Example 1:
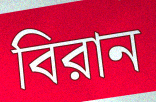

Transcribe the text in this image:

বিরান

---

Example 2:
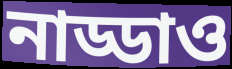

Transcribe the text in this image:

নাড্ডাও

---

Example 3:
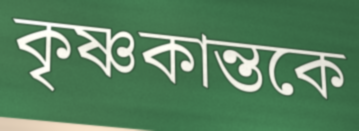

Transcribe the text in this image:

কৃষ্ণকান্তকে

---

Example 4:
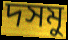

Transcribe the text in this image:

দসমু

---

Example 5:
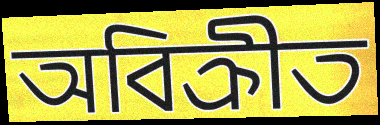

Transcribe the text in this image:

অবিক্রীত